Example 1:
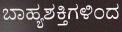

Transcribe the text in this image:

ಬಾಹ್ಯಶಕ್ತಿಗಳಿಂದ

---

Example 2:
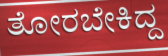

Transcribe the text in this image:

ತೋರಬೇಕಿದ್ದ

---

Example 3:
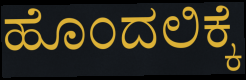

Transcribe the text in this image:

ಹೊಂದಲಿಕ್ಕೆ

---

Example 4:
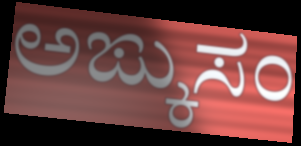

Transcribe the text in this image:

ಅಙ್ಕುಸಂ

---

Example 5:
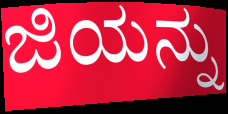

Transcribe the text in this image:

ಜಿಯನ್ನು